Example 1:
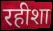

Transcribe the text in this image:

रहीशा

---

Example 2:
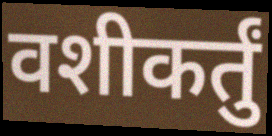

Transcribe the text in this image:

वशीकर्तुं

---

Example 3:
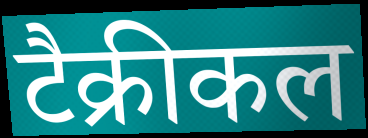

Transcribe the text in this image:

टैक्रीकल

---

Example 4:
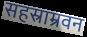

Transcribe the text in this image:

सहस्राम्रवन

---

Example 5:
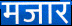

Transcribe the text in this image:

मजार